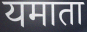
यमाता